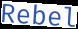
Rebel